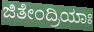
ಜಿತೇಂದ್ರಿಯಾಃ